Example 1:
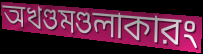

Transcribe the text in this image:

অখণ্ডমণ্ডলাকারং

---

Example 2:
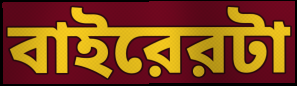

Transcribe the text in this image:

বাইরেরটা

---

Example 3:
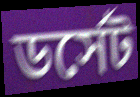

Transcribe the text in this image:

ডর্সেট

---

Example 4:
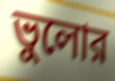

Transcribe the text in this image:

ভুলোর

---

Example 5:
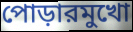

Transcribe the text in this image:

পোড়ারমুখো